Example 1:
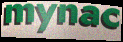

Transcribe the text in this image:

mynac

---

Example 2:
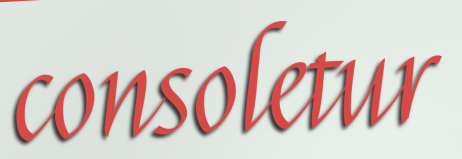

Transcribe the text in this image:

consoletur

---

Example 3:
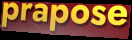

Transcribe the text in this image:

prapose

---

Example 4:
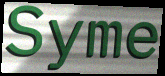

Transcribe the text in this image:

Syme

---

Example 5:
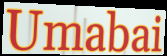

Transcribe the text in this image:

Umabai